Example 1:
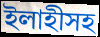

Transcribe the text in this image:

ইলাহীসহ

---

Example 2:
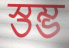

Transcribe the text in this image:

স্তম্ভ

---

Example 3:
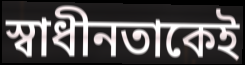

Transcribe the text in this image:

স্বাধীনতাকেই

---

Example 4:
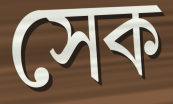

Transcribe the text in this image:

সেক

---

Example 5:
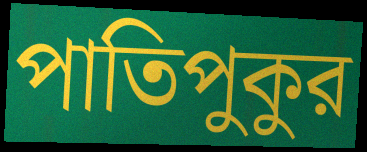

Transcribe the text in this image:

পাতিপুকুর